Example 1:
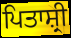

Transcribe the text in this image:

ਪਿਤਾਸ਼੍ਰੀ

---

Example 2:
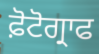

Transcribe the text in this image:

ਫ਼ੋਟੋਗ੍ਰਾਫ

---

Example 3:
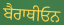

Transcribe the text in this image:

ਬੈਰਾਥੀਓਨ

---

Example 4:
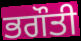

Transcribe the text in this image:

ਭਗੌਤੀ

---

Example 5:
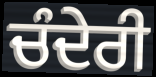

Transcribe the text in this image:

ਚੰਦੇਰੀ